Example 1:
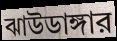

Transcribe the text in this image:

ঝাউডাঙ্গার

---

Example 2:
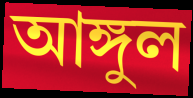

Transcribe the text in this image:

আঙ্গুল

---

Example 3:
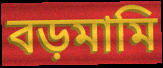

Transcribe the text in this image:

বড়মামি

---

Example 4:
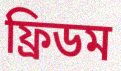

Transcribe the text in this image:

ফ্রিডম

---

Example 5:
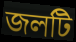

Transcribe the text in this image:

জলটি